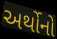
અર્થોનો